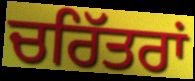
ਚਰਿੱਤਰਾਂ